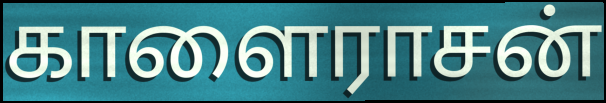
காளைராசன்